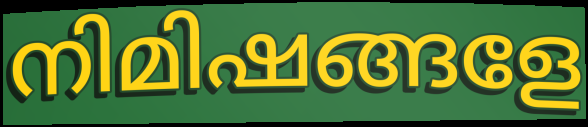
നിമിഷങ്ങളേ